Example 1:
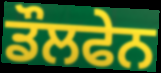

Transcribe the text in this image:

ਡੌਲਫੇਨ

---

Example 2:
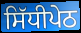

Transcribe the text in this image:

ਸਿੱਧੀਪੇਠ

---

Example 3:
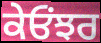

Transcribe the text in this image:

ਕੇਓਂਝਰ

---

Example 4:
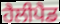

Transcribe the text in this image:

ਹੈਲੀਪੈਡ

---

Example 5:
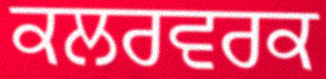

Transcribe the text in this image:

ਕਲਰਵਰਕ